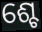
ଶ୍ଚେ